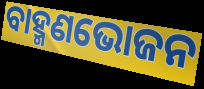
ବାହ୍ମଣଭୋଜନ